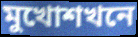
মুখোশখনে